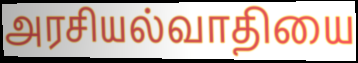
அரசியல்வாதியை